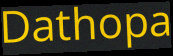
Dathopa